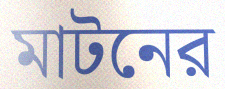
মাটনের